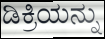
ಡಿಕ್ರಿಯನ್ನು